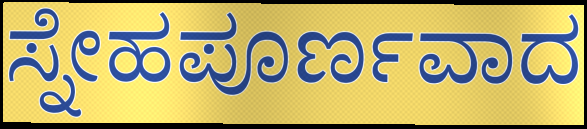
ಸ್ನೇಹಪೂರ್ಣವಾದ